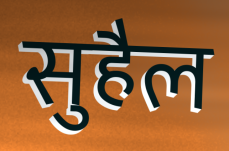
सुहैल